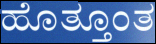
ಹೊತ್ತೂಂತ